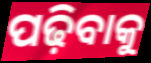
ପଢ଼ିବାକୁ